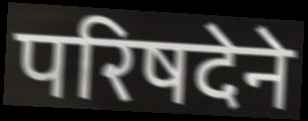
परिषदेने